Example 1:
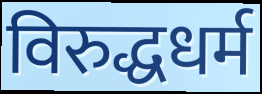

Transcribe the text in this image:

विरुद्धधर्म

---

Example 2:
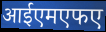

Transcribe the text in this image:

आईएमएफए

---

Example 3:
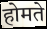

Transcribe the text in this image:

होमते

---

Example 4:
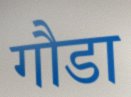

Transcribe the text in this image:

गौडा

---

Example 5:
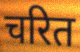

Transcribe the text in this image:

चरित